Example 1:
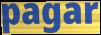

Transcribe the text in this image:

pagar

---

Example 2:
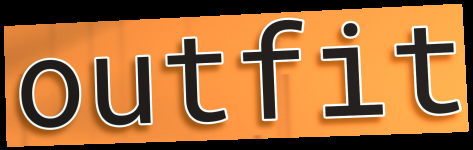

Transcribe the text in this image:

outfit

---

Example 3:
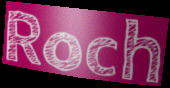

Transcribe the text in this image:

Roch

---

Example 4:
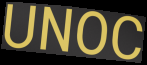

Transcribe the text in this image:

UNOC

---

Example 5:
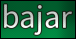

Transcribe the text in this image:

bajar